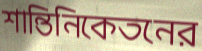
শান্তিনিকেতনের